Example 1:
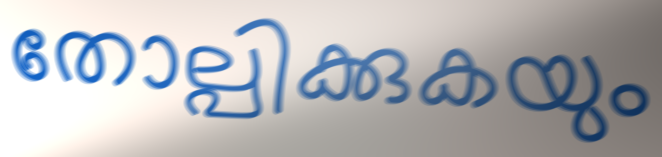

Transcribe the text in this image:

തോല്പിക്കുകയും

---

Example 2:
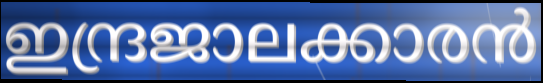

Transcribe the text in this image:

ഇന്ദ്രജാലക്കാരൻ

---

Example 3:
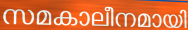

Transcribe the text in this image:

സമകാലീനമായി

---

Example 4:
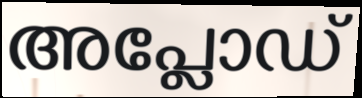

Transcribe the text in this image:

അപ്ലോഡ്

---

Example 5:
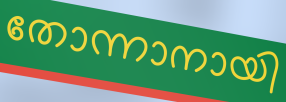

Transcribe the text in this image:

തോന്നാനായി